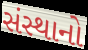
સંસ્થાનો